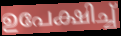
ഉപേക്ഷിച്ച്